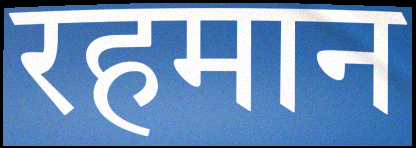
रहमान